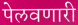
पेलवणारी